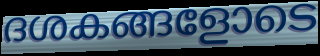
ദശകങ്ങളോടെ